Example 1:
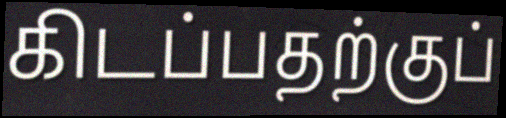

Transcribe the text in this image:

கிடப்பதற்குப்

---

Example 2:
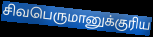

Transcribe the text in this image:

சிவபெருமானுக்குரிய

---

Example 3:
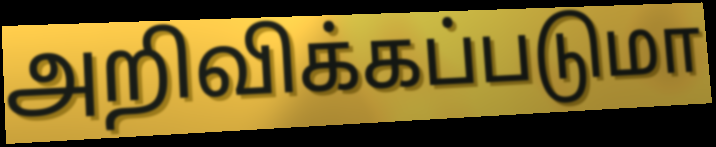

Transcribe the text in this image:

அறிவிக்கப்படுமா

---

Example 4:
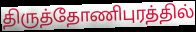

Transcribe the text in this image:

திருத்தோணிபுரத்தில்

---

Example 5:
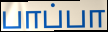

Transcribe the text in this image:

பாப்பா